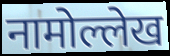
नामोल्लेख